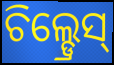
ଚିଲ୍ଡ୍ରେସ୍